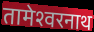
तामेश्वरनाथ